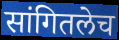
सांगितलेच